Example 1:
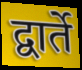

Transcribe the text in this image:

द्वार्ते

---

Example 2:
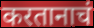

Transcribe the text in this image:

करतानाचं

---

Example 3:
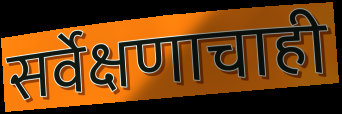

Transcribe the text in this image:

सर्वेक्षणाचाही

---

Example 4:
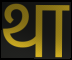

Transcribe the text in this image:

था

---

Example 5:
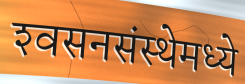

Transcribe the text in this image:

श्वसनसंस्थेमध्ये